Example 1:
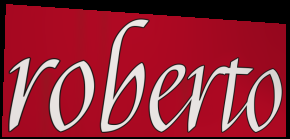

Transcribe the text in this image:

roberto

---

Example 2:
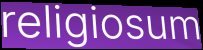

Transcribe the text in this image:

religiosum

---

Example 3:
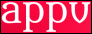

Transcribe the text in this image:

appu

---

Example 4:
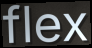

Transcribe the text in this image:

flex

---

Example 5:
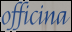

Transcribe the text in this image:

officina